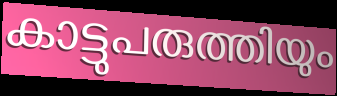
കാട്ടുപരുത്തിയും